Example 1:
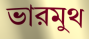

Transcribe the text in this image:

ভারমুথ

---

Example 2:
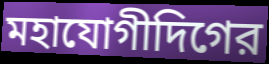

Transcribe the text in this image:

মহাযোগীদিগের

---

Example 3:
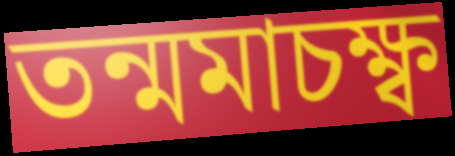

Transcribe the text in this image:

তন্মমাচক্ষ্ব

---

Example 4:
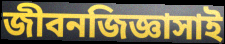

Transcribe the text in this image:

জীবনজিজ্ঞাসাই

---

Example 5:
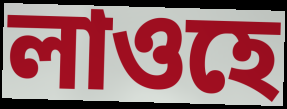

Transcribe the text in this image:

লাওহে